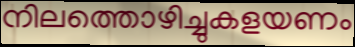
നിലത്തൊഴിച്ചുകളയണം